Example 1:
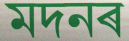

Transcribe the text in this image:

মদনৰ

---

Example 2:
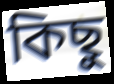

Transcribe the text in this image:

কিছু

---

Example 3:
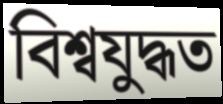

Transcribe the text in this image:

বিশ্বযুদ্ধত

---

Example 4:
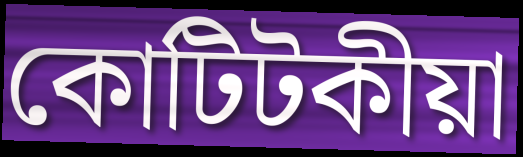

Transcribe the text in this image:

কোটিটকীয়া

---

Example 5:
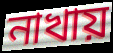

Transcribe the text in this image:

নাখায়